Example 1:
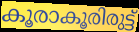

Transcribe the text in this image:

കൂരാകൂരിരുട്ട്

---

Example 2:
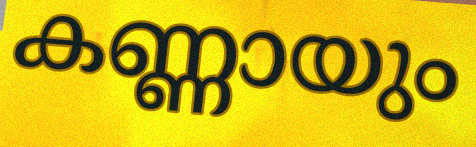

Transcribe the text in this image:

കണ്ണായും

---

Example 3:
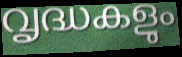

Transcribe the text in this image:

വൃദ്ധകളും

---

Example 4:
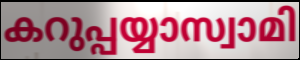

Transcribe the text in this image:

കറുപ്പയ്യാസ്വാമി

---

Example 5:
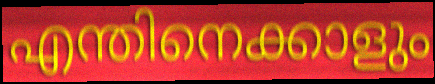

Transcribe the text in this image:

എന്തിനെക്കാളും